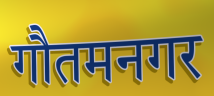
गौतमनगर